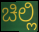
ಚಿಲ್ಲಿ